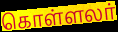
கொள்ளலர்